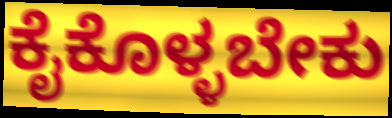
ಕೈಕೊಳ್ಳಬೇಕು